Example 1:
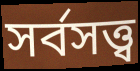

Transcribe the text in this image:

সর্বসত্ত্ব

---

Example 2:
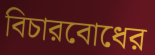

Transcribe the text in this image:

বিচারবোধের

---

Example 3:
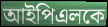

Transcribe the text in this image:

আইপিএলকে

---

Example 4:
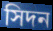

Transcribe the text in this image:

সিদন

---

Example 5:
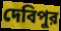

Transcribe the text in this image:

দেবিপুর